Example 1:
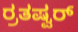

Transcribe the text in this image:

ರ್ರತಷ್ವರ್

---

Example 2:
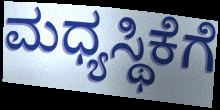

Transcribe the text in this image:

ಮಧ್ಯಸ್ಥಿಕೆಗೆ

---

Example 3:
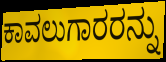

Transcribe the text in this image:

ಕಾವಲುಗಾರರನ್ನು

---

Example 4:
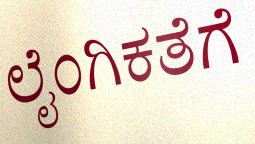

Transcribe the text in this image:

ಲೈಂಗಿಕತೆಗೆ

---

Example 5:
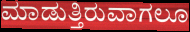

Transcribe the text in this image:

ಮಾಡುತ್ತಿರುವಾಗಲೂ